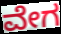
ವೇಗ